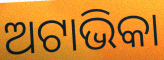
ଅଟାଭିକା